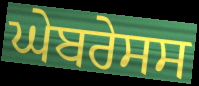
ਘੇਬਰੇਸਸ